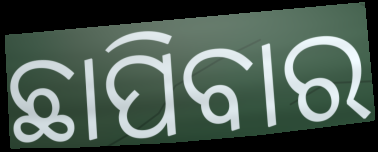
ଛାପିବାର